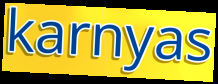
karnyas